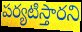
పర్యటిస్తారని